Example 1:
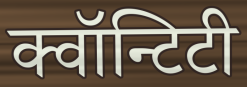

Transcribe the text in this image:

क्वॉन्टिटी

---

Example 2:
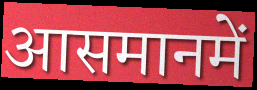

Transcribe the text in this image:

आसमानमें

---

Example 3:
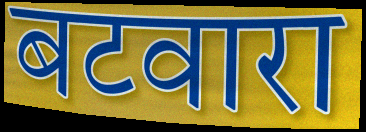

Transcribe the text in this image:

बटवारा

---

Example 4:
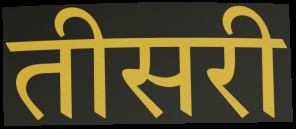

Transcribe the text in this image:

तीसरी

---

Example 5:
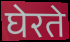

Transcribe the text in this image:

घेरते